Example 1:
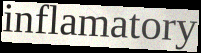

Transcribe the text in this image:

inflamatory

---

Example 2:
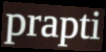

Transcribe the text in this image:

prapti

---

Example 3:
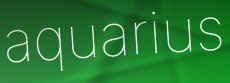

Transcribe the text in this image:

aquarius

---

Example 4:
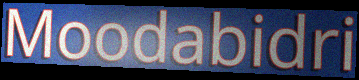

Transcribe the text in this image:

Moodabidri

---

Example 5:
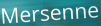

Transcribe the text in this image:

Mersenne